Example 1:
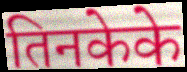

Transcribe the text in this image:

तिनकेके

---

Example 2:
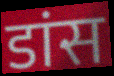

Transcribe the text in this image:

डांस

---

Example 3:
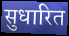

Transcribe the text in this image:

सुधारित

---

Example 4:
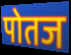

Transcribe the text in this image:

पोतज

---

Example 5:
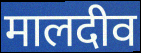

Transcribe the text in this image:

मालदीव